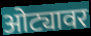
ओट्यावर